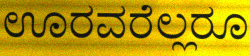
ಊರವರೆಲ್ಲರೂ